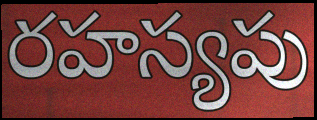
రహస్యపు